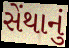
સેંથાનું